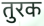
तुरक